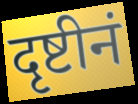
दृष्टीनं